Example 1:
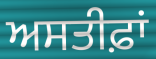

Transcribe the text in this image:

ਅਸਤੀਫ਼ਾਂ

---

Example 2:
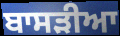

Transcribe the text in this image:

ਬਾਸੜੀਆ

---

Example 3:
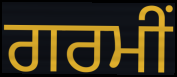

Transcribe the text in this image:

ਗਰਮੀਂ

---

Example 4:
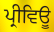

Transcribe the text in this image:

ਪ੍ਰੀਵਿਊ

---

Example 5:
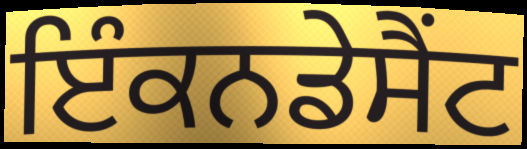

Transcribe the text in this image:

ਇੰਕਨਡੇਸੈਂਟ